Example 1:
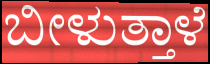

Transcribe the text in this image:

ಬೀಳುತ್ತಾಳೆ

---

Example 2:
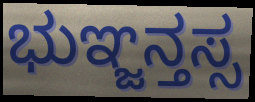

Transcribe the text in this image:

ಭುಞ್ಜನ್ತಸ್ಸ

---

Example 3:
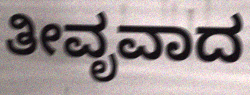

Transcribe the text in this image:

ತೀವೃವಾದ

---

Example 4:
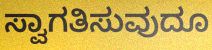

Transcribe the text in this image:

ಸ್ವಾಗತಿಸುವುದೂ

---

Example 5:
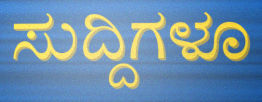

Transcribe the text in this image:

ಸುದ್ದಿಗಳೂ